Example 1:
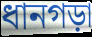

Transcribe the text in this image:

ধানগড়া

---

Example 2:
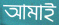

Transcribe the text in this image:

আমাই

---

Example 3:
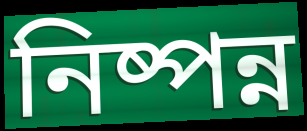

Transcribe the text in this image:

নিষ্পন্ন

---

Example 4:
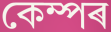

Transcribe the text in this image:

কেম্পৰ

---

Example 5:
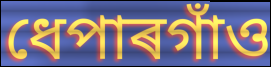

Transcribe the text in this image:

ধেপাৰগাঁও